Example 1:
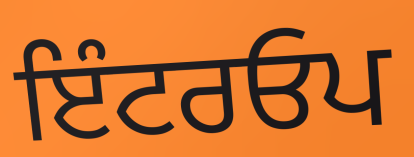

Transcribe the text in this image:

ਇੰਟਰਓਪ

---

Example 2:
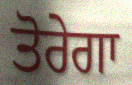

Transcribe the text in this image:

ਤੋਰੇਗਾ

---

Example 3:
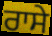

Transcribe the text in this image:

ਰਾਸੇ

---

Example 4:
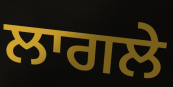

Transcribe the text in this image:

ਲਾਗਲੇ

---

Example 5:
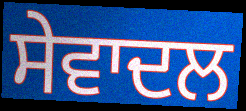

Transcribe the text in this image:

ਸੇਵਾਦਲ